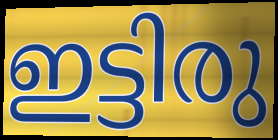
ഇട്ടിരു